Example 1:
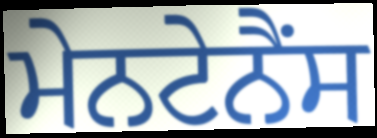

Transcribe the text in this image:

ਮੇਨਟੇਨੈਂਸ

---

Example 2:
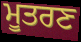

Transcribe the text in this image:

ਮੂਤਰਣ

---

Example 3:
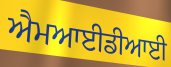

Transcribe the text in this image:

ਐਮਆਈਡੀਆਈ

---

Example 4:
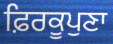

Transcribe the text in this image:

ਫ਼ਿਰਕੂਪੁਣਾ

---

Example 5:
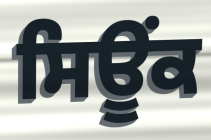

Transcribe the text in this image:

ਸਿਊਂਕ